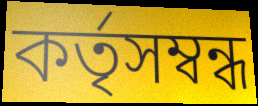
কর্তৃসম্বন্ধ